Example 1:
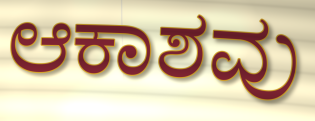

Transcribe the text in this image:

ಆಕಾಶವು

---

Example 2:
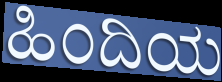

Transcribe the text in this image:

ಹಿಂದಿಯ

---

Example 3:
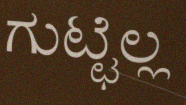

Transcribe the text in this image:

ಗುಟ್ಟೆಲ್ಲ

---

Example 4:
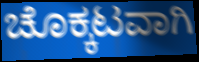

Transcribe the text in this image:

ಚೊಕ್ಕಟವಾಗಿ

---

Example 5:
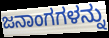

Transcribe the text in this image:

ಜನಾಂಗಗಳನ್ನು